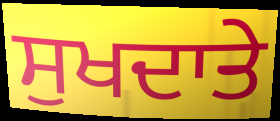
ਸੁਖਦਾਤੇ